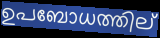
ഉപബോധത്തില്